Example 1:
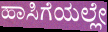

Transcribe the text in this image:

ಹಾಸಿಗೆಯಲ್ಲೇ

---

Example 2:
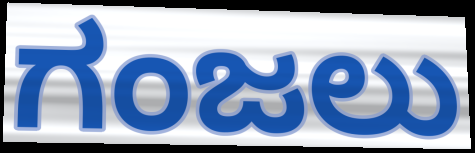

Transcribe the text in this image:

ಗಂಜಲು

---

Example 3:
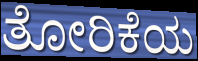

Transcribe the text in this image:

ತೋರಿಕೆಯ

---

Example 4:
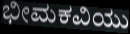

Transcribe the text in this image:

ಭೀಮಕವಿಯು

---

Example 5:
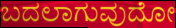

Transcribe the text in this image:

ಬದಲಾಗುವುದೋ